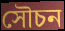
সৌচন